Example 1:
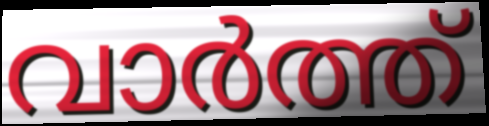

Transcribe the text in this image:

വാർത്ത്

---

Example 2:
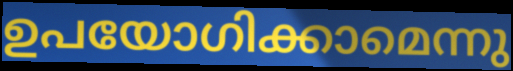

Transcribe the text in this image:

ഉപയോഗിക്കാമെന്നു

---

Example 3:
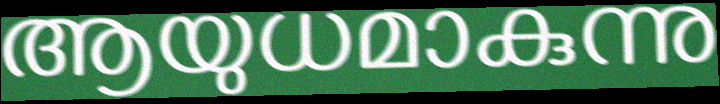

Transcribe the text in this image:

ആയുധമാകുന്നു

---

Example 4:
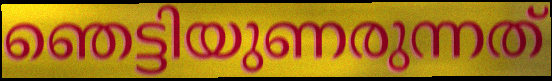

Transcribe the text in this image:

ഞെട്ടിയുണരുന്നത്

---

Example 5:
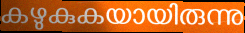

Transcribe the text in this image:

കഴുകുകയായിരുന്നു